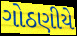
ગોઠણીયે